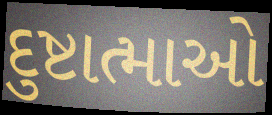
દુષ્ટાત્માઓ